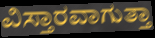
ವಿಸ್ತಾರವಾಗುತ್ತಾ